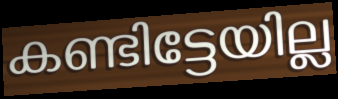
കണ്ടിട്ടേയില്ല